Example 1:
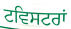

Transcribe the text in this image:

ਟਵਿਸਟਰਾਂ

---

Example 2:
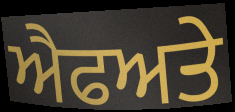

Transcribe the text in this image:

ਐਫਅਤੇ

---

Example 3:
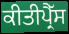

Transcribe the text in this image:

ਕੀਤੀਪ੍ਰੈੱਸ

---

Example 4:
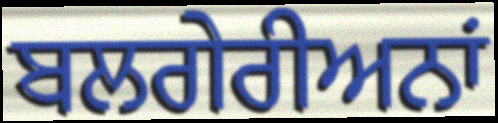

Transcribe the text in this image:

ਬਲਗੇਰੀਅਨਾਂ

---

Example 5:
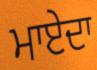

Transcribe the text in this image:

ਮਾਏਦਾ